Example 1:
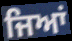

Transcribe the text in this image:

ਜਿਆਂ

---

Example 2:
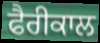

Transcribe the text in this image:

ਫੈਰੀਕਾਲ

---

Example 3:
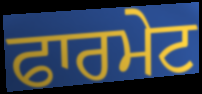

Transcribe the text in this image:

ਫਾਰਮੇਟ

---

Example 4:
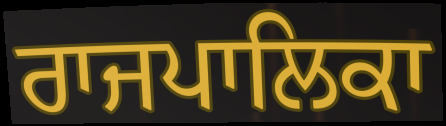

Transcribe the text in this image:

ਰਾਜਪਾਲਿਕਾ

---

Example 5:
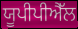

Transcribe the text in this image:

ਯੂਪੀਪੀਐੱਲ